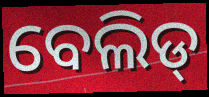
ବେଲିଡ୍